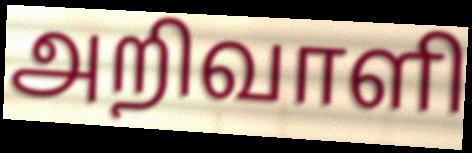
அறிவாளி